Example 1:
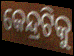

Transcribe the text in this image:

କେନ୍ଦ୍ରଟିକୁ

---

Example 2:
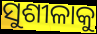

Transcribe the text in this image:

ସୁଶୀଳାକୁ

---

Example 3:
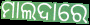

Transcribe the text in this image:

ମାଲଦାରେ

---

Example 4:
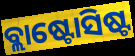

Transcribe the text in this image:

ବ୍ଲାଷ୍ଟୋସିଷ୍ଟ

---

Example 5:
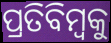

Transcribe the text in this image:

ପ୍ରତିବିମ୍ୱକୁ